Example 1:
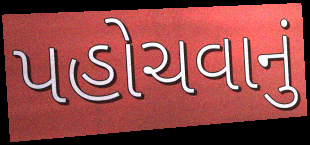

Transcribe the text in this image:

પહોચવાનું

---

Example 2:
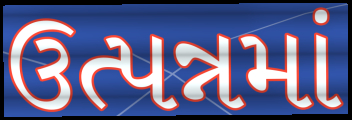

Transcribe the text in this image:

ઉત્પન્નમાં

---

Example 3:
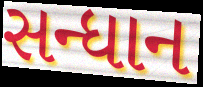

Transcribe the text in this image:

સન્ધાન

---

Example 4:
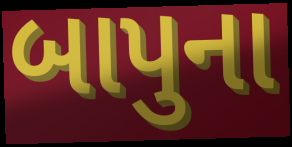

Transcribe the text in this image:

બાપુના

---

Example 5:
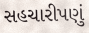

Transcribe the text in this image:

સહચારીપણું